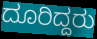
ದೂರಿದ್ದರು